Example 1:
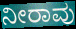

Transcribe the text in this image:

ನೀರಾವು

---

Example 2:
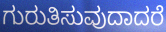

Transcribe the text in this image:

ಗುರುತಿಸುವುದಾದರೆ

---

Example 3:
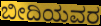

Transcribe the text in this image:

ಬೀದಿಯವರ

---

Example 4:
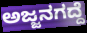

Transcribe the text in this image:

ಅಜ್ಜನಗದ್ದೆ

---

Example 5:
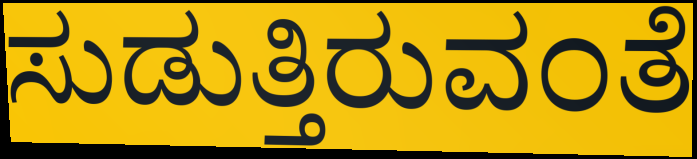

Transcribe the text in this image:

ಸುಡುತ್ತಿರುವಂತೆ